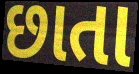
છાતા